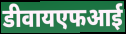
डीवायएफआई